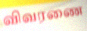
விவரணை